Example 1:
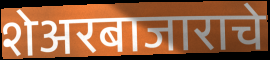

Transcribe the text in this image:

शेअरबाजाराचे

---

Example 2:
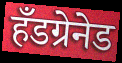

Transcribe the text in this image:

हँडग्रेनेड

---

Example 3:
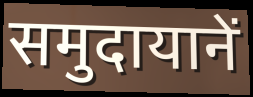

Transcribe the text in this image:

समुदायानें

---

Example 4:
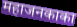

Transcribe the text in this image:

महाजनकाका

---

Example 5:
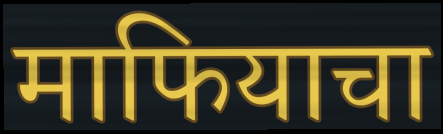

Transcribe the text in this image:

माफियाचा